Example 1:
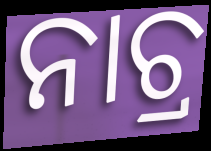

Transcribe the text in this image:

ନାଚ୍ର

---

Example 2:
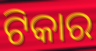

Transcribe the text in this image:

ଟିକାର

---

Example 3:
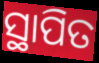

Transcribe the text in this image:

ସ୍ଥାପିତ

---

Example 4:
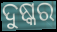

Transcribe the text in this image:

ଦୁଷ୍କର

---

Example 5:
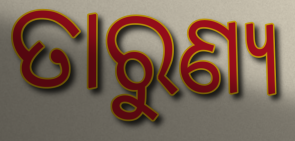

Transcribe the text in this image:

ତାରୁଣ୍ୟ